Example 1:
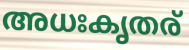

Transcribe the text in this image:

അധഃകൃതര്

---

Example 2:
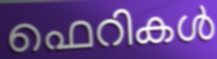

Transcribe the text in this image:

ഫെറികൾ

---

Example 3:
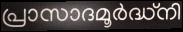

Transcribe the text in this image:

പ്രാസാദമൂർദ്ധ്നി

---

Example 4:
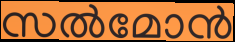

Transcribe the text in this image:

സൽമോൻ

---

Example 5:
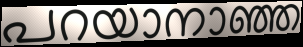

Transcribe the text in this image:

പറയാനാഞ്ഞ